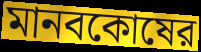
মানবকোষের